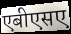
एबीएसए